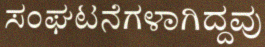
ಸಂಘಟನೆಗಳಾಗಿದ್ದವು